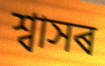
শ্বাসৰ